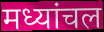
मध्यांचल